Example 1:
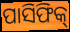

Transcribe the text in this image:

ପାସିଫିକ୍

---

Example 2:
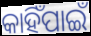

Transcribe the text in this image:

କାହିଁପାଇଁ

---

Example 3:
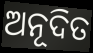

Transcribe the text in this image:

ଅନୂଦିତ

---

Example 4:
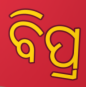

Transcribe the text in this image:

ବିପ୍ର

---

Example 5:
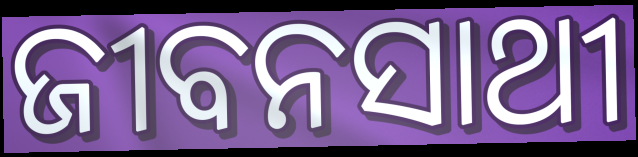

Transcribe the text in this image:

ଜୀବନସାଥୀ